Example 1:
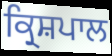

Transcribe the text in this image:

ਕ੍ਰਿਸ਼ਪਾਲ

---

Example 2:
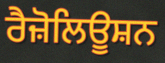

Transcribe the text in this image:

ਰੈਜ਼ੋਲਿਊਸ਼ਨ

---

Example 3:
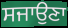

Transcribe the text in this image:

ਸਜਾਉਣਾ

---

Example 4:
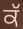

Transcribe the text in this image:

ਕੱ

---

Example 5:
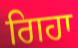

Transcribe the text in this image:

ਗਿਹਾ